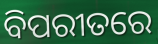
ବିପରୀତରେ